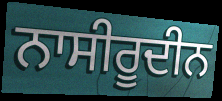
ਨਾਸੀਰੂਦੀਨ